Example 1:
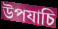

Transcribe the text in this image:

উপযাচি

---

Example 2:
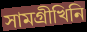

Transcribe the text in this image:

সামগ্ৰীখিনি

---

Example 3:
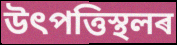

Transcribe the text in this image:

উৎপত্তিস্থলৰ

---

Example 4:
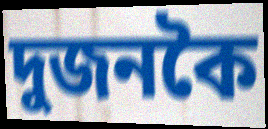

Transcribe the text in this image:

দুজনকৈ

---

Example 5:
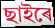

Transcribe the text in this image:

ছাইৰে